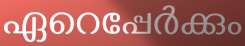
ഏറെപ്പേർക്കും